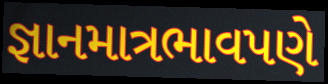
જ્ઞાનમાત્રભાવપણે